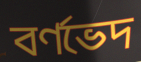
বর্ণভেদ